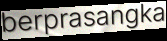
berprasangka